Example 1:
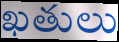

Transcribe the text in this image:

ఖతులు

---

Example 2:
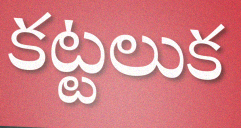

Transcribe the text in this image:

కట్టలుక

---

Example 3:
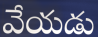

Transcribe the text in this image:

వేయడు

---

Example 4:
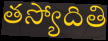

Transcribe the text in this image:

తస్యోదితి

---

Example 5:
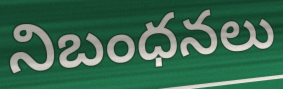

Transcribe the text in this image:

నిబంధనలు